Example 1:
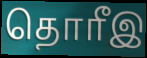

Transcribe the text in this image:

தொரீஇ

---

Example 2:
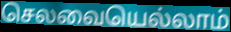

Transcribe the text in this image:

செலவையெல்லாம்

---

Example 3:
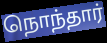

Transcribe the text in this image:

நொந்தார்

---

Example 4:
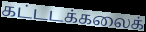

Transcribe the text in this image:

கட்டடக்கலைக்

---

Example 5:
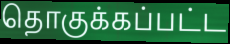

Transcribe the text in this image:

தொகுக்கப்பட்ட